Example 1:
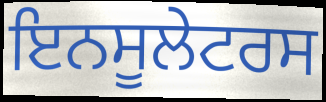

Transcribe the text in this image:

ਇਨਸੂਲੇਟਰਸ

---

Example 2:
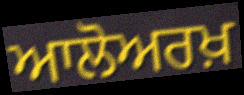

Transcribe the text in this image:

ਆਲੋਅਰਖ਼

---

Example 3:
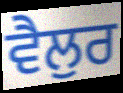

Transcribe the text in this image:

ਵੈਲੁਰ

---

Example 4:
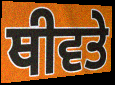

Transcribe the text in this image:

ਥੀਵਤੇ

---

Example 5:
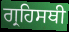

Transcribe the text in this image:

ਗ੍ਰਹਿਸਥੀ